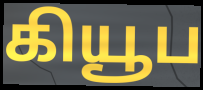
கியூப